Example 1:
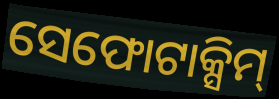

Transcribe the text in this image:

ସେଫୋଟାକ୍ସିମ୍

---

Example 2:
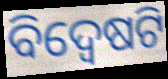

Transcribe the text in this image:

ବିଦ୍ୱେଷଟି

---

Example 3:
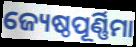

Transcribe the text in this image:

ଜ୍ୟେଷ୍ଠପୂର୍ଣ୍ଣିମା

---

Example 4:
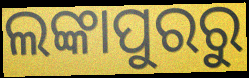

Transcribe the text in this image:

ଲଙ୍କାପୁରରୁ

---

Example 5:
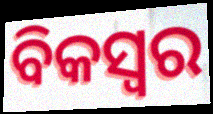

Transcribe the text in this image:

ବିକସ୍ୱର